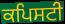
ਕਪਿਸਟੀ